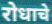
रोधाचे